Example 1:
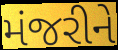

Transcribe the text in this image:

મંજરીને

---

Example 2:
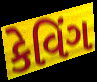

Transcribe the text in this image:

કેવિંગ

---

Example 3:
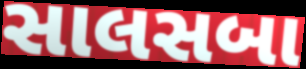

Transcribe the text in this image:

સાલસબા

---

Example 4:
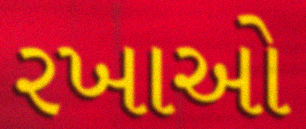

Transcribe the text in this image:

રખાઓ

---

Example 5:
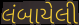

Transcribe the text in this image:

લંબાયેલી